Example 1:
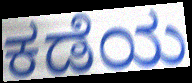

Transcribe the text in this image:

ಕಡೆಯ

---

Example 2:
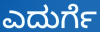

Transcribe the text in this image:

ಎದುರ್ಗೆ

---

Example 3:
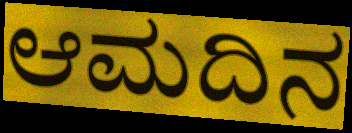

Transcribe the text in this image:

ಆಮದಿನ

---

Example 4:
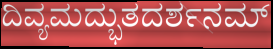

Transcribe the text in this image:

ದಿವ್ಯಮದ್ಭುತದರ್ಶನಮ್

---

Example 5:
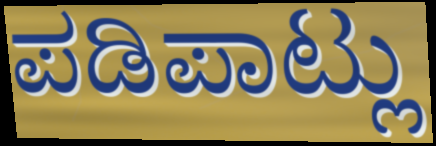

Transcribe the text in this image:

ಪಡಿಪಾಟ್ಲು